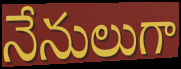
నేనులుగా